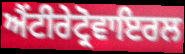
ਐਂਟੀਰੇਟ੍ਰੋਵਾਇਰਲ